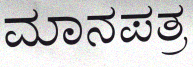
ಮಾನಪತ್ರ